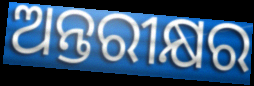
ଅନ୍ତରୀକ୍ଷର